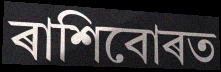
ৰাশিবোৰত